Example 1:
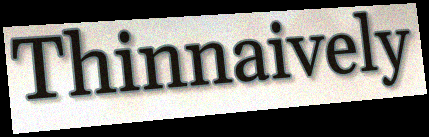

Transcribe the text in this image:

Thinnaively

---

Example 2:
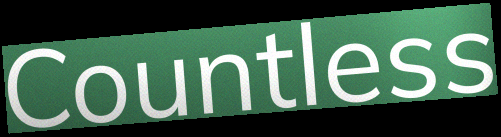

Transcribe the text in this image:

Countless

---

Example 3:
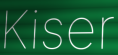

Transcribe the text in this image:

Kiser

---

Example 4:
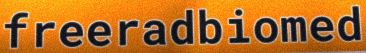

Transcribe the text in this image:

freeradbiomed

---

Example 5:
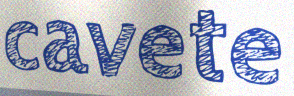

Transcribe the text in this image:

cavete